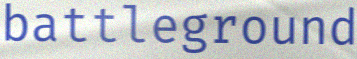
battleground